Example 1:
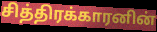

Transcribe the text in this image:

சித்திரக்காரனின்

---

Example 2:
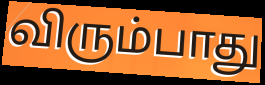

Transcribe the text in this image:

விரும்பாது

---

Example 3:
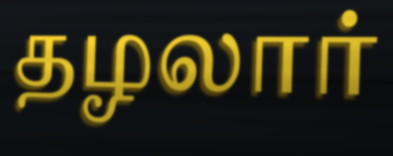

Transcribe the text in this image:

தழலார்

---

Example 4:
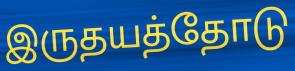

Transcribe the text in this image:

இருதயத்தோடு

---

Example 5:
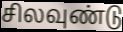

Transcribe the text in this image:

சிலவுண்டு